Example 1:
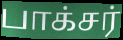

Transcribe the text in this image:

பாக்சர்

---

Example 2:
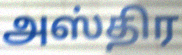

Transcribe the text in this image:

அஸ்திர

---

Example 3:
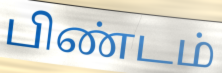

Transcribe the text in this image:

பிண்டம்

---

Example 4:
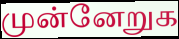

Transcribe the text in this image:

முன்னேறுக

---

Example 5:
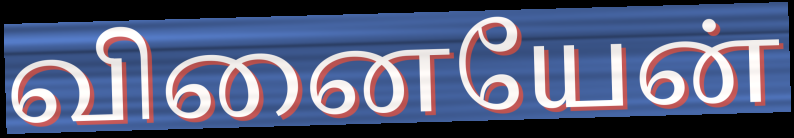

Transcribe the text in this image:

வினையேன்